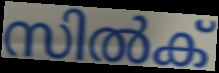
സിൽക്